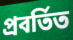
প্রবর্তিত